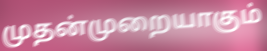
முதன்முறையாகும்